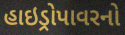
હાઇડ્રોપાવરનો